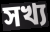
সখ্য